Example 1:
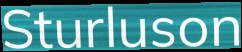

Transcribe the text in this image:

Sturluson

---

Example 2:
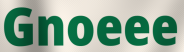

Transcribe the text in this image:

Gnoeee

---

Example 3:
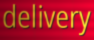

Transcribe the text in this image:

delivery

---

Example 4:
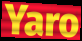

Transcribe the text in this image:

Yaro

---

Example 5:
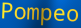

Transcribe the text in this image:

Pompeo